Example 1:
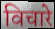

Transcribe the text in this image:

विचारे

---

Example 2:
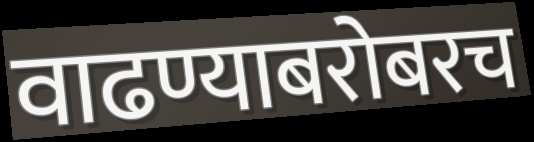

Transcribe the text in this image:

वाढण्याबरोबरच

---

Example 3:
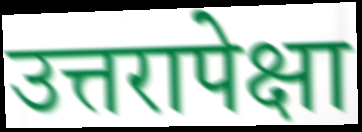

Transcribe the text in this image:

उत्तरापेक्षा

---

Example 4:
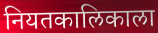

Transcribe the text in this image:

नियतकालिकाला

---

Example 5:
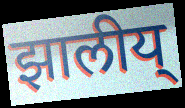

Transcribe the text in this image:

झालीय्